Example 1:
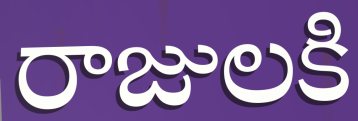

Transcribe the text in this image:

రాజులకి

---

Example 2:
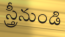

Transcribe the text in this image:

స్త్రీనుండి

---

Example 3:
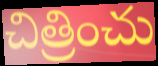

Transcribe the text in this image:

చిత్రించు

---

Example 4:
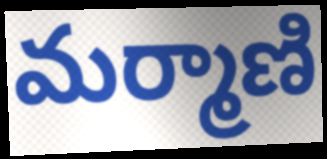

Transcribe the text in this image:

మర్మాణి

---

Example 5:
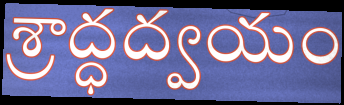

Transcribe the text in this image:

శ్రాద్ధద్వయం